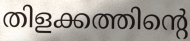
തിളക്കത്തിന്റെ